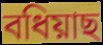
বধিয়াছ